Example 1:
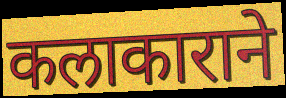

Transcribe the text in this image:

कलाकाराने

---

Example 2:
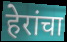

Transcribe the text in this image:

हेरांचा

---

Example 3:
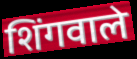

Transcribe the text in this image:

शिंगवाले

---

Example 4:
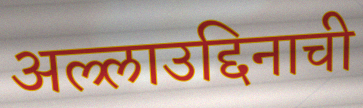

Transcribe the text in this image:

अल्लाउद्दिनाची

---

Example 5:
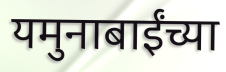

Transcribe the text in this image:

यमुनाबाईंच्या